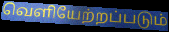
வெளியேற்றப்படும்